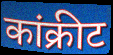
कांक्रीट